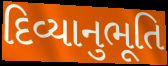
દિવ્યાનુભૂતિ